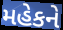
મહેકને